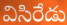
విసిరేడు